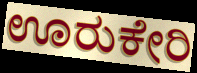
ಊರುಕೇರಿ